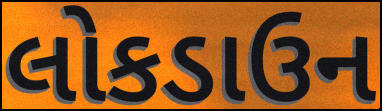
લોકડાઉન